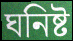
ঘনিষ্ট